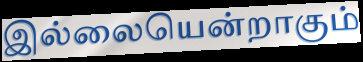
இல்லையென்றாகும்